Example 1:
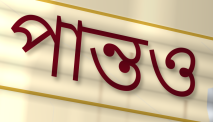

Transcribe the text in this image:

পান্তও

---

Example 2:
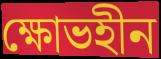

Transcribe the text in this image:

ক্ষোভহীন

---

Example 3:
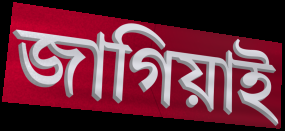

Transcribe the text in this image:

জাগিয়াই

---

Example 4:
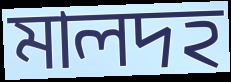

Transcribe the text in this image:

মালদহ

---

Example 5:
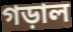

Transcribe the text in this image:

গড়াল